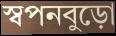
স্বপনবুড়ো